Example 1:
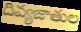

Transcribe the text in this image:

దివ్యజాతుల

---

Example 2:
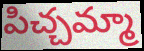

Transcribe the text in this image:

పిచ్చమ్మా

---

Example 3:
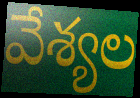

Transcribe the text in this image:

వేశ్యల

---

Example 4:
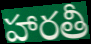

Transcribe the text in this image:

హారతీ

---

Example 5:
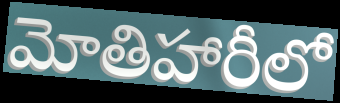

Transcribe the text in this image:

మోతిహారీలో